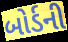
બોર્ડની